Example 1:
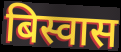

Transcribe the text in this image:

बिस्वास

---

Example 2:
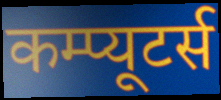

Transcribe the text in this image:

कम्प्यूटर्स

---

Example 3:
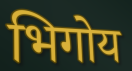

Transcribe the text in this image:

भिगोय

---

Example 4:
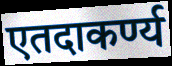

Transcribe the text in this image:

एतदाकर्ण्य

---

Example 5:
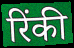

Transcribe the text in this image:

रिंकी